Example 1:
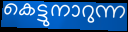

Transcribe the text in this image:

കെട്ടുനാറുന്ന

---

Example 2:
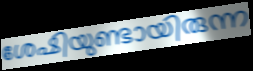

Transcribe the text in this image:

ശേഷിയുണ്ടായിരുന്ന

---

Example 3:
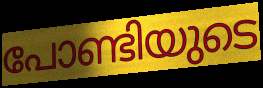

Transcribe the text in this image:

പോണ്ടിയുടെ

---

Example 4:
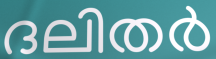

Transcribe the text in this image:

ദലിതർ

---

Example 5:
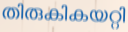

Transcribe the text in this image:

തിരുകികയറ്റി